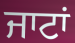
ਜਾਟਾਂ